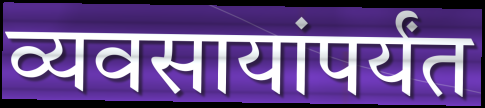
व्यवसायांपर्यंत